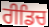
ਰੀਡਿਚ